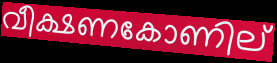
വീക്ഷണകോണില്